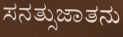
ಸನತ್ಸುಜಾತನು